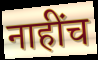
नाहींच